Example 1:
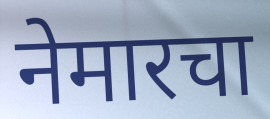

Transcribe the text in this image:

नेमारचा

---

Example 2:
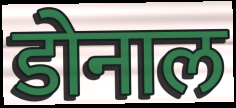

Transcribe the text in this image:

डोनाल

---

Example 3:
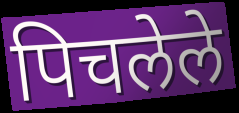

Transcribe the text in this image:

पिचलेले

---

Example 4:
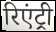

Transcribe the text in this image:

रिएंट्री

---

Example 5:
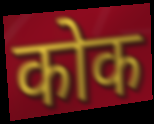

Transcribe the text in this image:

कोक